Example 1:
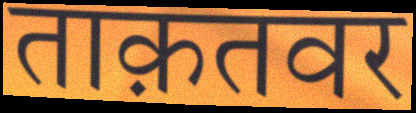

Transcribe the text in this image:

ताक़तवर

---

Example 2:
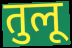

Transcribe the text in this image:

तुलू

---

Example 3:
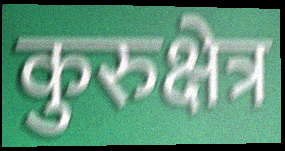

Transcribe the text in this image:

कुरुक्षेत्र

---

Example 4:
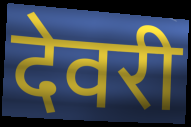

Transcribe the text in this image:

देवरी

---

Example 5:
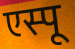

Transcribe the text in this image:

एस्पू